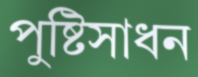
পুষ্টিসাধন